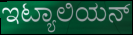
ಇಟ್ಯಾಲಿಯನ್